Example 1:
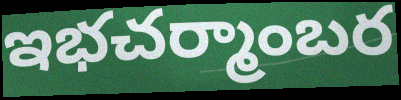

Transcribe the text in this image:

ఇభచర్మాంబర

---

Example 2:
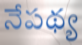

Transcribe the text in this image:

నేపథ్య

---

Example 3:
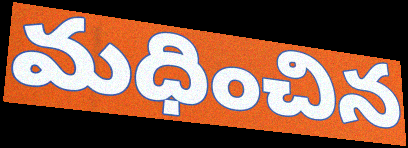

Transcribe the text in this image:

మధించిన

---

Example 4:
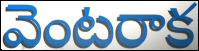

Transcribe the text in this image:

వెంటరాక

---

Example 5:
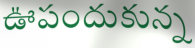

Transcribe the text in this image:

ఊపందుకున్న